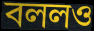
বললও